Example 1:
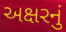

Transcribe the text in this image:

અક્ષરનું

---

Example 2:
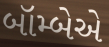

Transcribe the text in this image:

બૉમ્બેએ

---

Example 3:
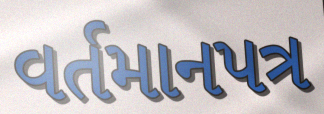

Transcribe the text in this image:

વર્તમાનપત્ર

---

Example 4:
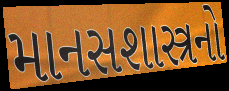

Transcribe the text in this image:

માનસશાસ્ત્રનો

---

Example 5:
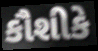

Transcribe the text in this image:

કૌશીકે